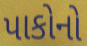
પાકોનો